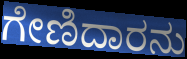
ಗೇಣಿದಾರನು